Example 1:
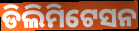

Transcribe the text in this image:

ଡିଲିମିଟେସନ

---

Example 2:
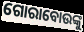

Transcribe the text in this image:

ଗୋରାବୋଉଙ୍କୁ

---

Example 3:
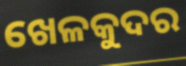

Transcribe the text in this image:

ଖେଳକୁଦର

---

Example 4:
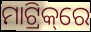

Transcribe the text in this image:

ମାଟ୍ରିକ୍‌ରେ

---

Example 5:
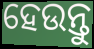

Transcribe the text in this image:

ହେଉନ୍ତୁ